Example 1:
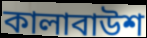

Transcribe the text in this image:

কালাবাউশ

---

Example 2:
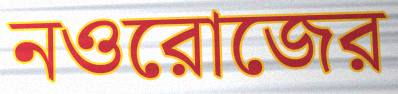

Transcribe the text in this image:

নওরোজের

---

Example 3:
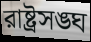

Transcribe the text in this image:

রাষ্ট্রসঙ্ঘ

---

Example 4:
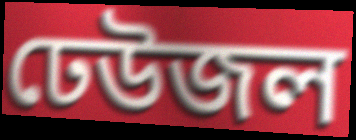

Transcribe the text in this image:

ঢেউজল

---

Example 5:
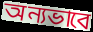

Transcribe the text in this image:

অন্যভাবে